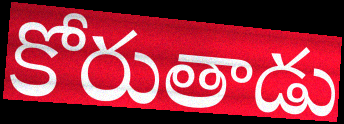
కోరుతాడు